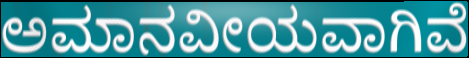
ಅಮಾನವೀಯವಾಗಿವೆ